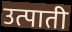
उत्पाती